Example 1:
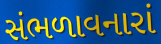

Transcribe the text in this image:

સંભળાવનારાં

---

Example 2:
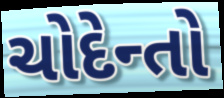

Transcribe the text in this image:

ચોદેન્તો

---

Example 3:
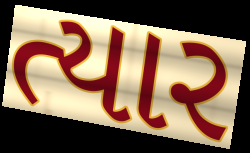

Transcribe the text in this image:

ત્‍યાર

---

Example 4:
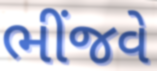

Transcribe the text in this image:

ભીંજવે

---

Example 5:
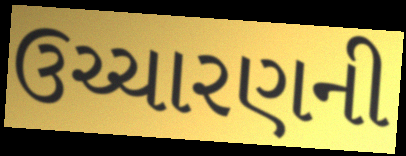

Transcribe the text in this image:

ઉચ્ચારણની